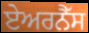
ਏਅਰਨੈੱਸ